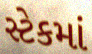
સ્ટેકમાં